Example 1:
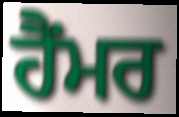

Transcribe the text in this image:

ਹੈਂਮਰ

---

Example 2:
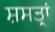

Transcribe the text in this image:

ਸ਼ਸਤ੍ਰਾਂ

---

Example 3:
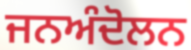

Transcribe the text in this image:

ਜਨਅੰਦੋਲਨ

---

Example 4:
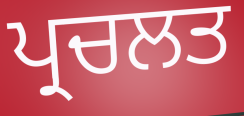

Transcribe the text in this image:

ਪ੍ਰਚਲਤ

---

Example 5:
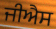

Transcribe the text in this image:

ਜੀਐਸ